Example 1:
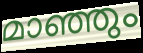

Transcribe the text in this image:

മാഞ്ഞും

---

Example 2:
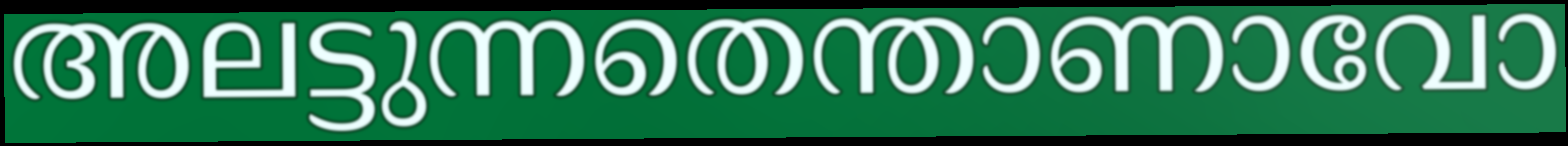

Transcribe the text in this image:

അലട്ടുന്നതെന്താണാവോ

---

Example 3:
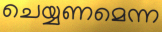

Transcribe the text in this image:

ചെയ്യണമെന്ന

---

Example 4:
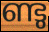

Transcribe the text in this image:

ണ്ടു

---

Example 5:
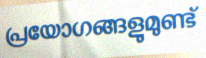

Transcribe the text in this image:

പ്രയോഗങ്ങളുമുണ്ട്